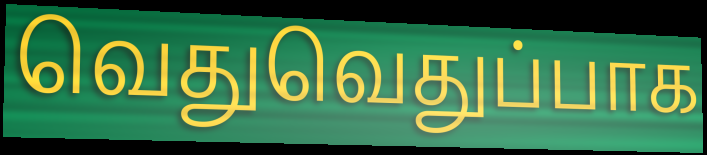
வெதுவெதுப்பாக